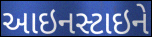
આઇનસ્ટાઇને